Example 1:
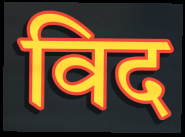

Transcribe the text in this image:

विद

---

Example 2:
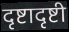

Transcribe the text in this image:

दृष्टादृष्टी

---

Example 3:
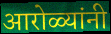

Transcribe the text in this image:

आरोळ्यांनी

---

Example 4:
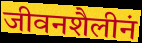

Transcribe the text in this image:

जीवनशैलीनं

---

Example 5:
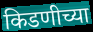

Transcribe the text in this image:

किडणीच्या